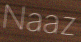
Naaz